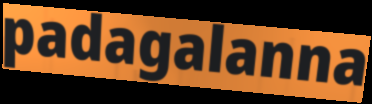
padagalanna